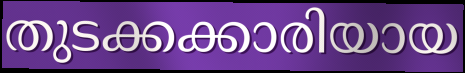
തുടക്കക്കാരിയായ